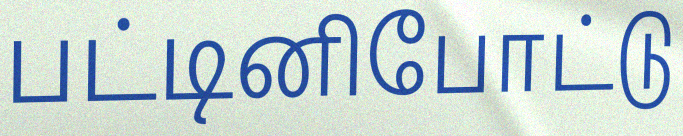
பட்டினிபோட்டு